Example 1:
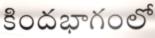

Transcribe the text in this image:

కిందభాగంలో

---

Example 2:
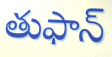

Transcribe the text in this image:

తుఫాన్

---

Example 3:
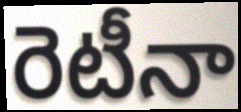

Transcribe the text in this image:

రెటీనా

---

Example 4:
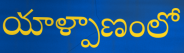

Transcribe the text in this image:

యాళ్పాణంలో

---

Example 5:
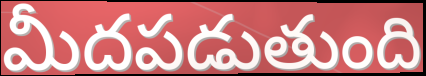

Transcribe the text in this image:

మీదపడుతుంది